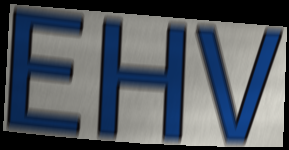
EHV